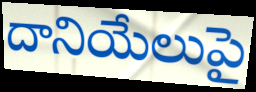
దానియేలుపై